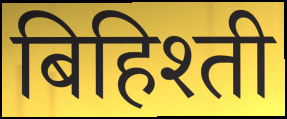
बिहिश्ती